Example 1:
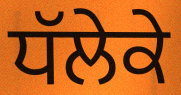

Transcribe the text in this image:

ਧੱਲੇਕੇ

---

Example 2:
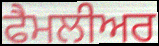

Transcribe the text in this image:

ਫੈਮਲੀਅਰ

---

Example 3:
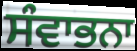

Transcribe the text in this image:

ਸੰਵਾਭਨਾ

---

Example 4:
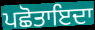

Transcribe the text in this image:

ਪਛੋਤਾਇਦਾ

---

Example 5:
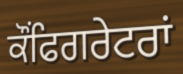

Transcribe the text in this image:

ਕੌਂਫਿਗਰੇਟਰਾਂ